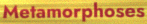
Metamorphoses